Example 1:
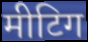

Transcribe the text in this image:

मीटिग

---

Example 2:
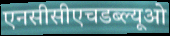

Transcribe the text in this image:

एनसीसीएचडब्ल्यूओ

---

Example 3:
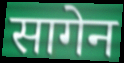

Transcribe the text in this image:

सागेन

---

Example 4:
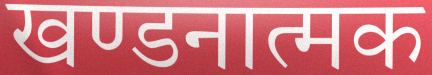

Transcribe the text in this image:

खण्डनात्मक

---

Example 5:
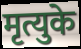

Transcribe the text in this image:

मृत्युके